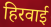
हिरवाई